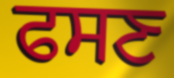
ਫਸਣ